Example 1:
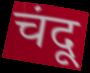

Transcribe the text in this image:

चंदू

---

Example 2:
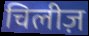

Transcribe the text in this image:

चिलीज़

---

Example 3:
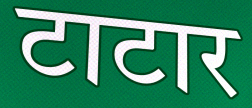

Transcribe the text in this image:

टाटार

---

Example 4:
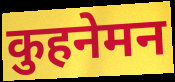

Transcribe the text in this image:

कुहनेमन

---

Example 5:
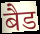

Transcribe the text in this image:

बैड